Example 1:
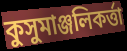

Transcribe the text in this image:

কুসুমাঞ্জলিকর্ত্তা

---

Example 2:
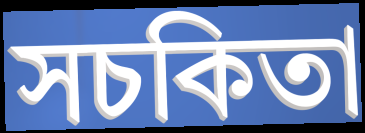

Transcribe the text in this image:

সচকিতা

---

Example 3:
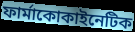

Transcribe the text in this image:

ফার্মাকোকাইনেটিক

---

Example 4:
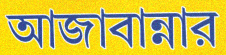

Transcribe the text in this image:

আজাবান্নার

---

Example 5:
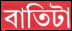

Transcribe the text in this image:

বাতিটা